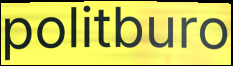
politburo